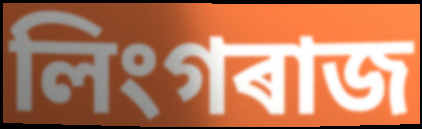
লিংগৰাজ